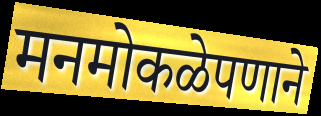
मनमोकळेपणाने